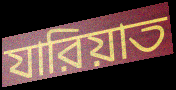
যারিয়াত